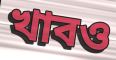
খাবও